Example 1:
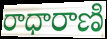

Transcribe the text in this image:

రాధారాణి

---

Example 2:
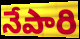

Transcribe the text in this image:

నేపారి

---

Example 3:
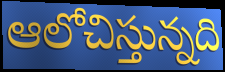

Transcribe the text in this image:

ఆలోచిస్తున్నది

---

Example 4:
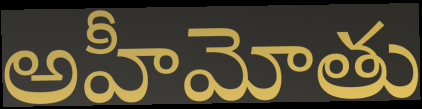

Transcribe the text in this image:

అహీమోతు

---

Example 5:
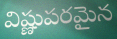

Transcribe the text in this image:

విష్ణుపరమైన